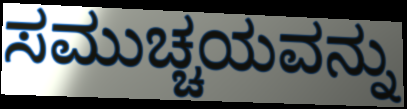
ಸಮುಚ್ಚಯವನ್ನು